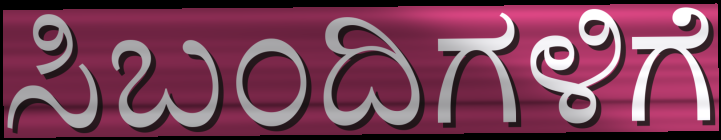
ಸಿಬಂದಿಗಳಿಗೆ